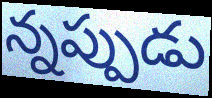
న్నప్పుడు